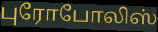
புரோபோலிஸ்